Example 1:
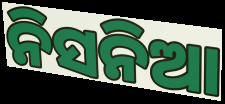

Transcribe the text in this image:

ନିସନିଆ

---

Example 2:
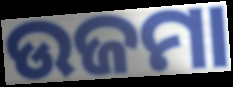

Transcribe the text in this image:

ଉଜମା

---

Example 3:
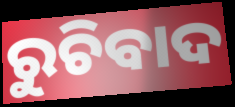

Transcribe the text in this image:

ରୁଚିବାଦ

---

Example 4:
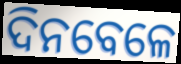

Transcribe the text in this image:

ଦିନବେଳେ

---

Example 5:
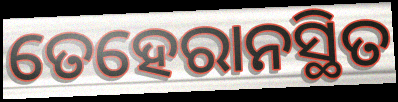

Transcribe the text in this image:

ତେହେରାନସ୍ଥିତ